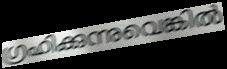
ഗ്രഹിക്കുന്നുവെങ്കിൽ